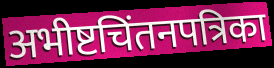
अभीष्टचिंतनपत्रिका